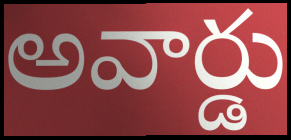
అవార్డు